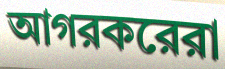
আগরকরেরা